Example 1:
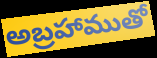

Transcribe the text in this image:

అబ్రహాముతో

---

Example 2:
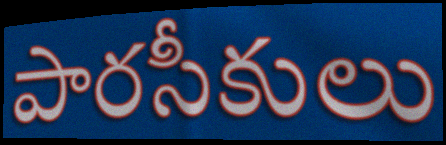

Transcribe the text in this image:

పారసీకులు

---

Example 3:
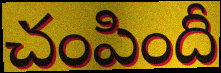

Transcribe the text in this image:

చంపిందీ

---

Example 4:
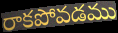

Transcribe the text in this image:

రాకపోవడము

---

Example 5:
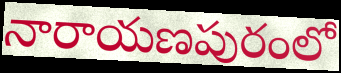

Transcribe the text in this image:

నారాయణపురంలో